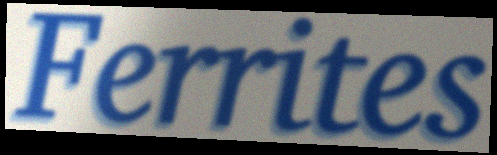
Ferrites